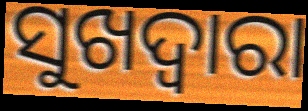
ସୁଖଦ୍ଵାରା